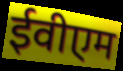
ईवीएम